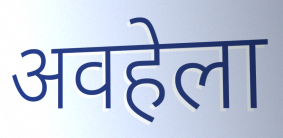
अवहेला